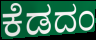
ಕೆಡದಂ